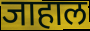
जाहाल